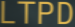
LTPD